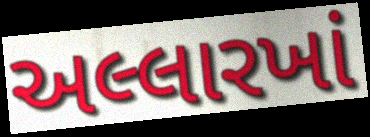
અલ્લારખાં